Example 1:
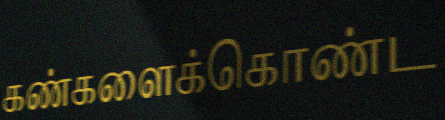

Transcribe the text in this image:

கண்களைக்கொண்ட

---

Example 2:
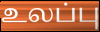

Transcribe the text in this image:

உலப்பு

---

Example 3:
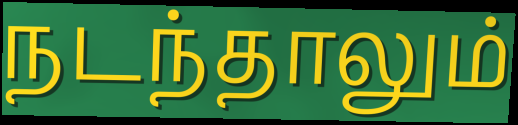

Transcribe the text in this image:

நடந்தாலும்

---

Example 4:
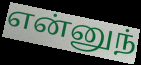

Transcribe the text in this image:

என்னுந்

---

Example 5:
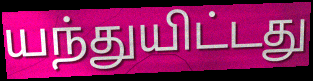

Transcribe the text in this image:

யந்துயிட்டது